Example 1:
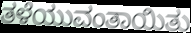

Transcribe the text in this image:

ತಳೆಯುವಂತಾಯಿತು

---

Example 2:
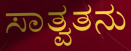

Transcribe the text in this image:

ಸಾತ್ವತನು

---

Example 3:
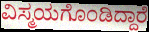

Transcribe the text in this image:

ವಿಸ್ಮಯಗೊಂಡಿದ್ದಾರೆ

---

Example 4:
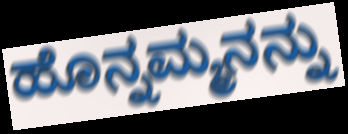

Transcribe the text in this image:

ಹೊನ್ನಮ್ಮನನ್ನು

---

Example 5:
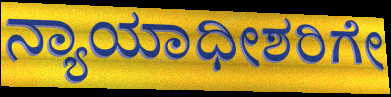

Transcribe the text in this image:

ನ್ಯಾಯಾಧೀಶರಿಗೇ